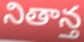
నితాన్త